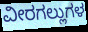
ವೀರಗಲ್ಲುಗಳ